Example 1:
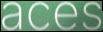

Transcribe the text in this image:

aces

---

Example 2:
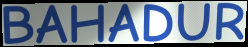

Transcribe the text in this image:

BAHADUR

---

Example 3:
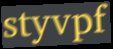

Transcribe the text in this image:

styvpf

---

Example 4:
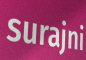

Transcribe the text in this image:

surajni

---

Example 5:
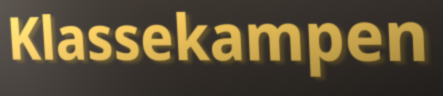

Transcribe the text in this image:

Klassekampen